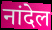
नांदेल